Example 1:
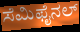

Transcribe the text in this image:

ಸೆಮಿಫೈನಲ್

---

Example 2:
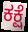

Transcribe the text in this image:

ಕಕ್ಷೆ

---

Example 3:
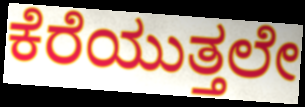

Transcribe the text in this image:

ಕೆರೆಯುತ್ತಲೇ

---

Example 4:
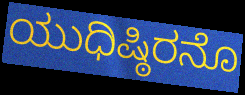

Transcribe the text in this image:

ಯುಧಿಷ್ಠಿರನೊ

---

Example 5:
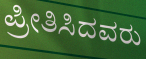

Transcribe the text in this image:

ಪ್ರೀತಿಸಿದವರು